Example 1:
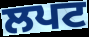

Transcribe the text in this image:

ਲਪਟ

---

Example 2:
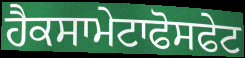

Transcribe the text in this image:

ਹੈਕਸਾਮੇਟਾਫੋਸਫੇਟ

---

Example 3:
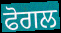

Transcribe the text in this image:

ਫੋਗਲ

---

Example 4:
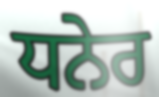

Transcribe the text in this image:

ਧਨੇਰ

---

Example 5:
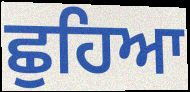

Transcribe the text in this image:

ਛੁਹਿਆ